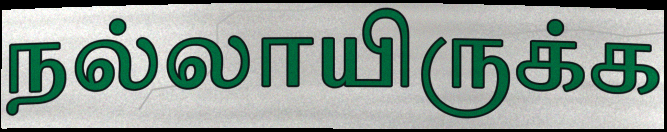
நல்லாயிருக்க